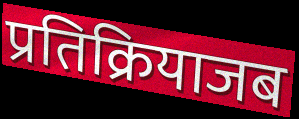
प्रतिक्रियाजब